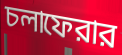
চলাফেরার